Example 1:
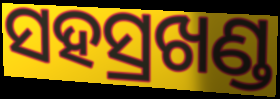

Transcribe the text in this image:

ସହସ୍ରଖଣ୍ଡ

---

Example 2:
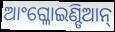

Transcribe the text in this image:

ଆଂଗ୍ଳୋଇଣ୍ଡିଆନ୍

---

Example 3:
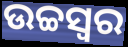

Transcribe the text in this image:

ଉଚ୍ଚସ୍ବର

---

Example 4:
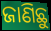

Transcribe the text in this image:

ଜାଣିଛୁ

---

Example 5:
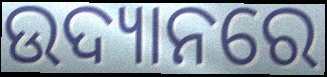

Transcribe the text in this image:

ଉଦ୍ୟାନରେ